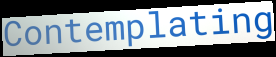
Contemplating